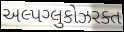
અલ્પગ્લુકોઝરક્ત